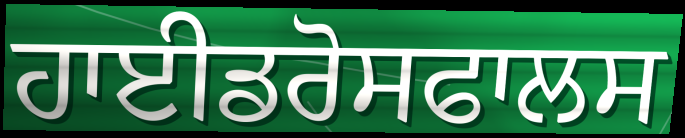
ਹਾਈਡਰੋਸਫਾਲਸ